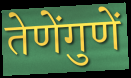
तेणेंगुणें